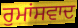
ਰੁਮਾਂਸਵਾਦ